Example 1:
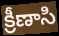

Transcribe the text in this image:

క్రీణాసి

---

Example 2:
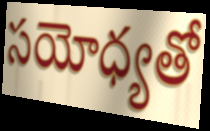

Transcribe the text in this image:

సయోధ్యతో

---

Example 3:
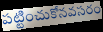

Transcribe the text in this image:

పట్టించుకోనవసరం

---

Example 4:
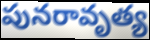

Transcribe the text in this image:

పునరావృత్య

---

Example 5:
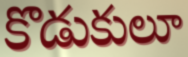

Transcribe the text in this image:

కొడుకులూ